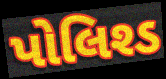
પોલિશ્ડ